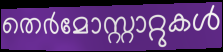
തെർമോസ്റ്റാറ്റുകൾ